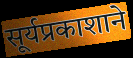
सूर्यप्रकाशाने